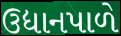
ઉદ્યાનપાળે